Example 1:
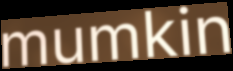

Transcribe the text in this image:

mumkin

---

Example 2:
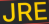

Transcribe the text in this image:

JRE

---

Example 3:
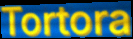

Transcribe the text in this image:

Tortora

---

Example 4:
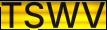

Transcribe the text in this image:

TSWV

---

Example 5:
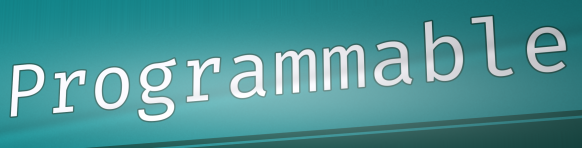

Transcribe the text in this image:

Programmable